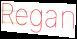
Regan